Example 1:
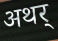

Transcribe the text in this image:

अथर्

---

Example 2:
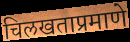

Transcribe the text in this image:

चिलखताप्रमाणे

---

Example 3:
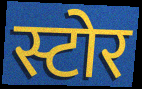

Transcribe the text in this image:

स्टोर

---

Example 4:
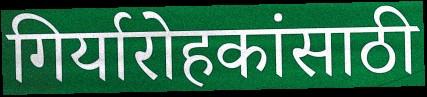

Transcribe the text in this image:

गिर्यारोहकांसाठी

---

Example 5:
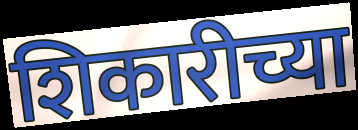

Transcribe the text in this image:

शिकारीच्या